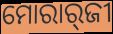
ମୋରାର୍‌ଜୀ